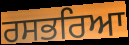
ਰਸਭਰਿਆ